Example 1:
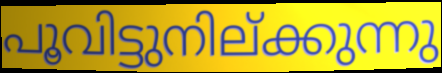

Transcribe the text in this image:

പൂവിട്ടുനില്ക്കുന്നു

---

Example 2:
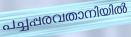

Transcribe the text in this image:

പച്ചപ്പരവതാനിയിൽ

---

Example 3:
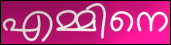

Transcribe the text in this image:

എമ്മിനെ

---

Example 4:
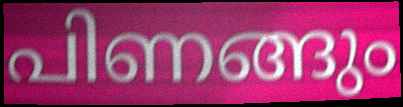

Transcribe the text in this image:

പിണങ്ങും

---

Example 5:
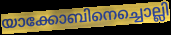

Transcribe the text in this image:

യാക്കോബിനെച്ചൊല്ലി